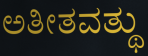
ಅತೀತವತ್ಥು